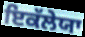
ਇਕੱਲੇਯਾ